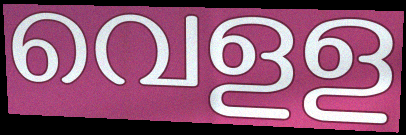
വെളള